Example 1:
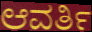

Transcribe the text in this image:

ಆವರ್ತಿ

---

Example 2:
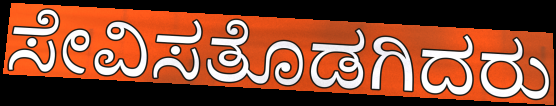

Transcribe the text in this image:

ಸೇವಿಸತೊಡಗಿದರು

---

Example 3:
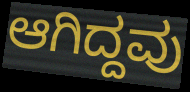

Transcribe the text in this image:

ಆಗಿದ್ದವು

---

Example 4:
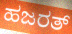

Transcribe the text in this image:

ಹಜರತ್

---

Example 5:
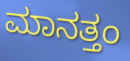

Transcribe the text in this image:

ಮಾನತ್ತಂ